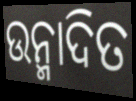
ଉନ୍ମାଦିତ